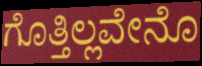
ಗೊತ್ತಿಲ್ಲವೇನೊ